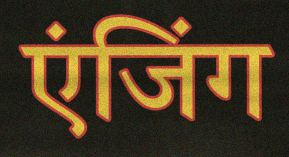
एंजिंग